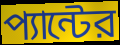
প্যান্টের